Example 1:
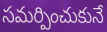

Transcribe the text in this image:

సమర్పించుకునే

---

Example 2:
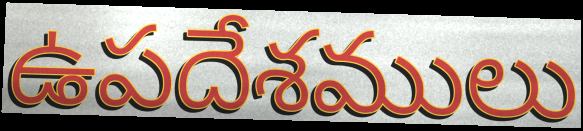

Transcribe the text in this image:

ఉపదేశములు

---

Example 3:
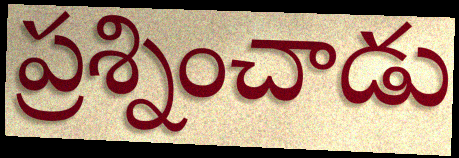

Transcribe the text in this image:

ప్రశ్నించాడు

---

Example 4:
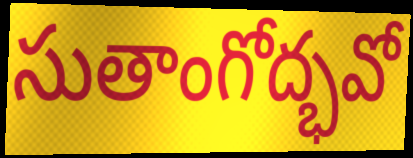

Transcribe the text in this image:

సుతాంగోద్భవో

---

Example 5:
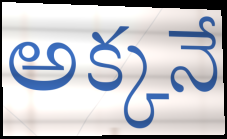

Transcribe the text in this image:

అక్కనే